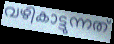
വഴികാട്ടുന്നത്